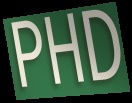
PHD